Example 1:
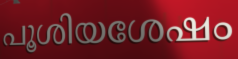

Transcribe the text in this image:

പൂശിയശേഷം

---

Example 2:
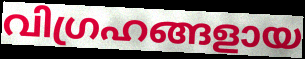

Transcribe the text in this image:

വിഗ്രഹങ്ങളായ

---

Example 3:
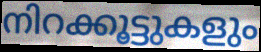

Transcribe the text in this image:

നിറക്കൂട്ടുകളും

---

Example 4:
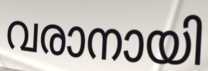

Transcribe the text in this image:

വരാനായി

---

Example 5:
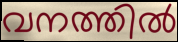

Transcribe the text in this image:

വനത്തിൽ